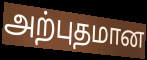
அற்புதமான